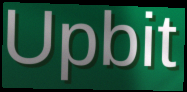
Upbit